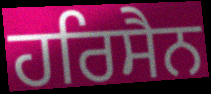
ਹਰਿਸੈਨ